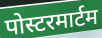
पोस्टरमार्टम